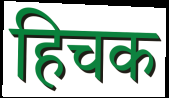
हिचक